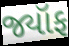
જ્યૉફ